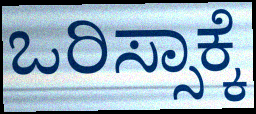
ಒರಿಸ್ಸಾಕ್ಕೆ